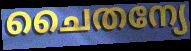
ചൈതന്യേ